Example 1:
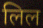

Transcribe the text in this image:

लिल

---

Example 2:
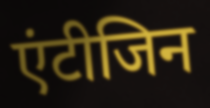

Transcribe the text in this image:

एंटीजिन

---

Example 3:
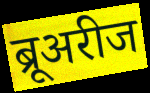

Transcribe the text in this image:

ब्रूअरीज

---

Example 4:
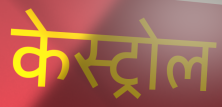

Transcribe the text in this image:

केस्ट्रोल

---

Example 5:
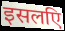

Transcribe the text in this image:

इसलएि